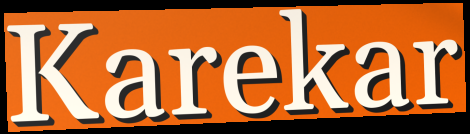
Karekar